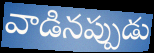
వాడినప్పుడు